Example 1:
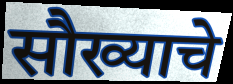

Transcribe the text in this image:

सौख्याचे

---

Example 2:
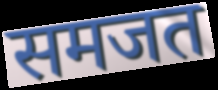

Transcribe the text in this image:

समजत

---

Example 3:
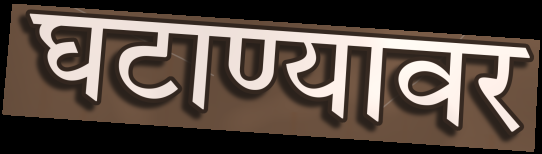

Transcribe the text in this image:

घटाण्यावर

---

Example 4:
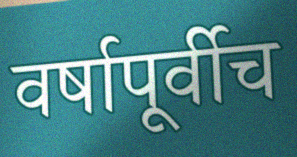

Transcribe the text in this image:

वर्षापूर्वीच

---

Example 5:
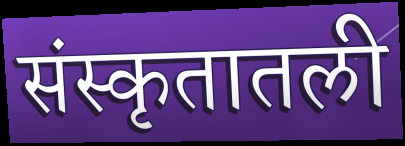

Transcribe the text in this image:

संस्कृतातली